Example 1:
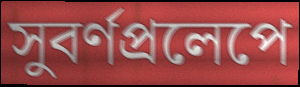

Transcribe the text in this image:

সুবর্ণপ্রলেপে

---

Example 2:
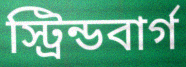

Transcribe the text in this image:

স্ট্রিন্ডবার্গ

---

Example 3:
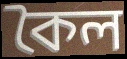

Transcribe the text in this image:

কৈল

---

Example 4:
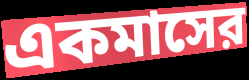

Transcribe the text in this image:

একমাসের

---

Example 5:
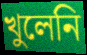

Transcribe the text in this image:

খুলেনি